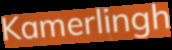
Kamerlingh